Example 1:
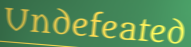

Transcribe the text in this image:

Undefeated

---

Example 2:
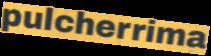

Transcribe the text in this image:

pulcherrima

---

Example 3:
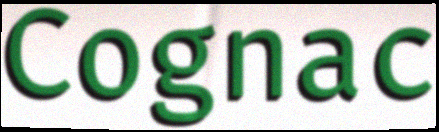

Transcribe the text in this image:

Cognac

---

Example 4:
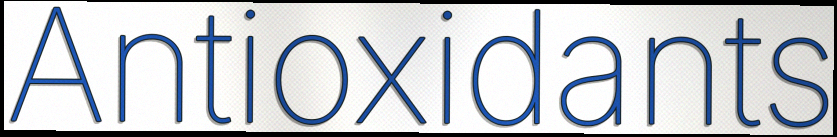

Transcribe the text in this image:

Antioxidants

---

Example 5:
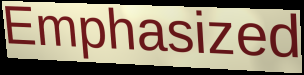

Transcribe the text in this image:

Emphasized